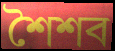
শৈশব